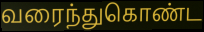
வரைந்துகொண்ட